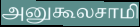
அனுகூலசாமி